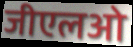
जीएलओ